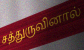
சத்துருவினால்